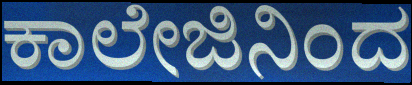
ಕಾಲೇಜಿನಿಂದ